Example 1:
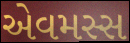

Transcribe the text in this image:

એવમસ્સ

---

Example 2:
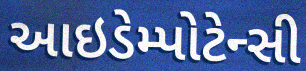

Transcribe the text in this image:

આઇડેમ્પોટેન્સી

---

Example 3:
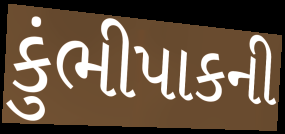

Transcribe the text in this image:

કુંભીપાકની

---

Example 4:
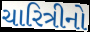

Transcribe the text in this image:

ચારિત્રીનો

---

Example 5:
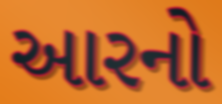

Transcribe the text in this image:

આરનો